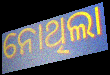
ନୋଥିଲା